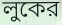
লুকের